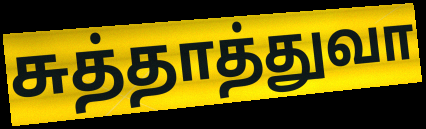
சுத்தாத்துவா